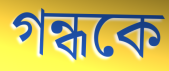
গন্ধকে